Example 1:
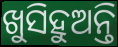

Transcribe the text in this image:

ଖୁସିହୁଅନ୍ତି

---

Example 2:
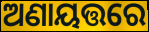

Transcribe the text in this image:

ଅଣାୟତ୍ତରେ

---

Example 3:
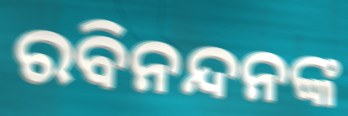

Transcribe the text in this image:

ରବିନନ୍ଦନଙ୍କ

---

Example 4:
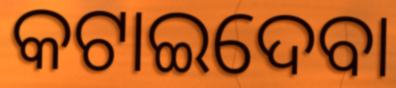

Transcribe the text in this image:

କଟାଇଦେବା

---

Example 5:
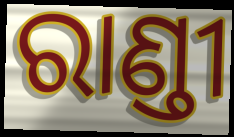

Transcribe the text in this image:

ରାଣ୍ଡୀ